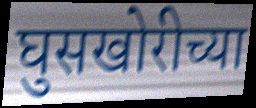
घुसखोरीच्या